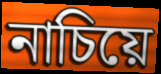
নাচিয়ে